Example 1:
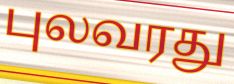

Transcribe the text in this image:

புலவரது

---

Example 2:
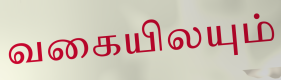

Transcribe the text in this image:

வகையிலயும்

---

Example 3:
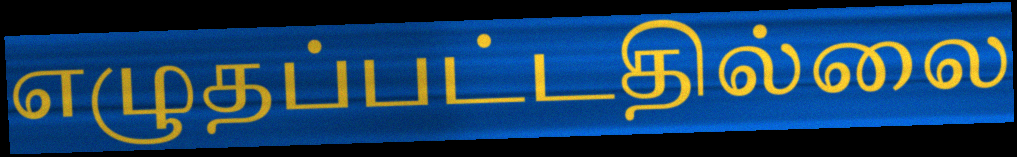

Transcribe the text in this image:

எழுதப்பட்டதில்லை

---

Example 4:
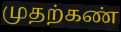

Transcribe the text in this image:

முதற்கண்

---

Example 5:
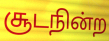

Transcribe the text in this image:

சூடநின்ற